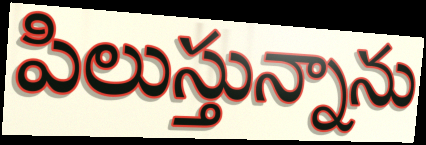
పిలుస్తున్నాను